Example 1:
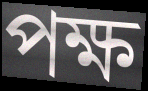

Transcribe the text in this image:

পক্ষ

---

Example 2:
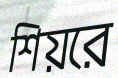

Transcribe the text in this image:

শিয়রে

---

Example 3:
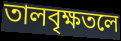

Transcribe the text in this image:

তালবৃক্ষতলে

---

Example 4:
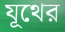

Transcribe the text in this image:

যূথের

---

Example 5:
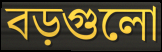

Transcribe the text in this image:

বড়গুলো